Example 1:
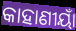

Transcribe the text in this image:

କାହାଣୀୟାଁ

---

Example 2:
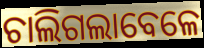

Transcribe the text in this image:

ଚାଲିଗଲାବେଳେ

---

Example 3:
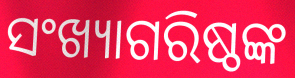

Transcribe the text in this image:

ସଂଖ୍ୟାଗରିଷ୍ଠଙ୍କ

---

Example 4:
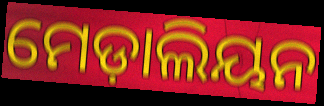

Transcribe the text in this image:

ମେଡ଼ାଲିୟନ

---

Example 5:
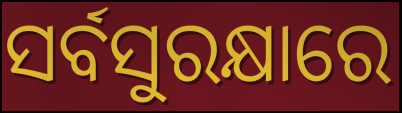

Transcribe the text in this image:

ସର୍ବସୁରକ୍ଷାରେ